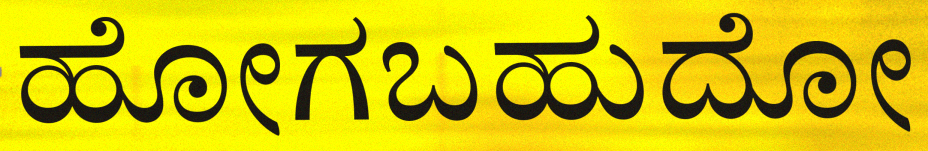
ಹೋಗಬಹುದೋ